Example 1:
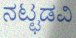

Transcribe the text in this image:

ನಟ್ಟಡವಿ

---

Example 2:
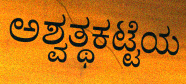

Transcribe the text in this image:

ಅಶ್ವತ್ಥಕಟ್ಟೆಯ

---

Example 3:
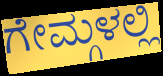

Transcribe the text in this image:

ಗೇಮ್ಗಳಲ್ಲಿ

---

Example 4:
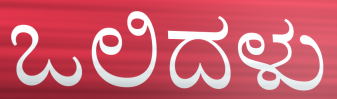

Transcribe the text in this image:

ಒಲಿದಳು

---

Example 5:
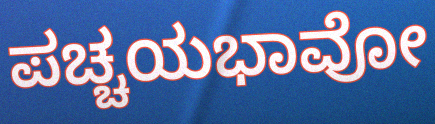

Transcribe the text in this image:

ಪಚ್ಚಯಭಾವೋ